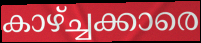
കാഴ്ച്ചക്കാരെ